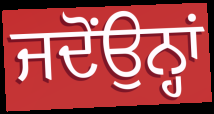
ਜਦੋਂਉਨ੍ਹਾਂ